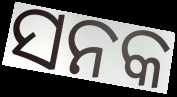
ସନକ